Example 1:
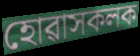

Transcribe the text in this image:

হোৱাসকলক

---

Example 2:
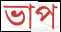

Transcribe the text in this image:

ভাপ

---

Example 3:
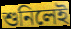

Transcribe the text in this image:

শুনিলেই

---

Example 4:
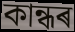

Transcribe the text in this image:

কান্ধৰ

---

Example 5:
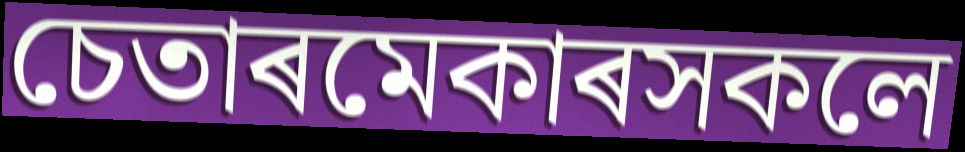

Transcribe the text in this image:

চেতাৰমেকাৰসকলে